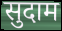
सुदाम